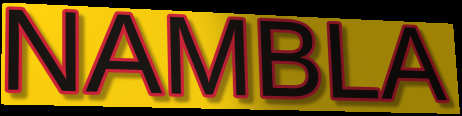
NAMBLA